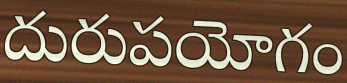
దురుపయోగం